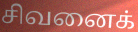
சிவனைக்